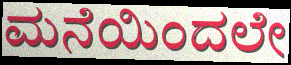
ಮನೆಯಿಂದಲೇ